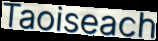
Taoiseach